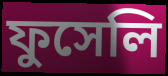
ফুসেলি